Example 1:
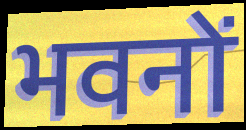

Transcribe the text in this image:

भवनों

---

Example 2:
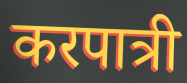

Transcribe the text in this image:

करपात्री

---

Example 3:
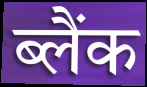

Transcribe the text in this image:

ब्लैंक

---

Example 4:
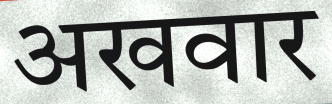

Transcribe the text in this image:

अखवार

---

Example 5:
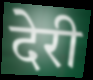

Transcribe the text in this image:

देरी